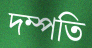
দম্পতি